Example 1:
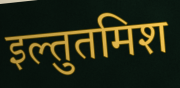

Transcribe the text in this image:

इल्तुतमिश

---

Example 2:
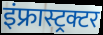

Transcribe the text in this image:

इंफ्रास्ट्रक्टर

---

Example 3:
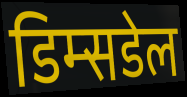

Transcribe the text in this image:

डिम्सडेल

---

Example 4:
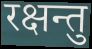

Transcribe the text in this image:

रक्षन्तु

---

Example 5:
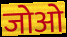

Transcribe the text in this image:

जोओ